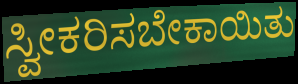
ಸ್ವೀಕರಿಸಬೇಕಾಯಿತು